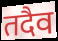
तदैव